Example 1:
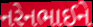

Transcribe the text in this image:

નરેનભાઈને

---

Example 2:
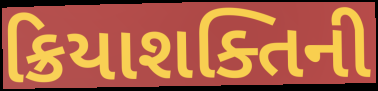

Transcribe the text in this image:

ક્રિયાશક્તિની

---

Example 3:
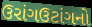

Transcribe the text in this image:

ઉરાંગઉટાંગનો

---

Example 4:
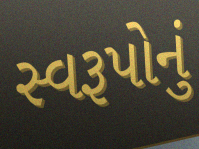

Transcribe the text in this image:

સ્વરૂપોનું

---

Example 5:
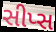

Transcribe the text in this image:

સીપ્સ